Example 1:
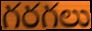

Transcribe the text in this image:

గరగలు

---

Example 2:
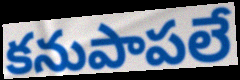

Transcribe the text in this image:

కనుపాపలే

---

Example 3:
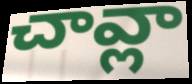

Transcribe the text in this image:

చావ్లా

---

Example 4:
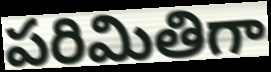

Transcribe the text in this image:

పరిమితిగా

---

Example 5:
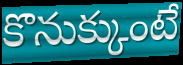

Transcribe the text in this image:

కొనుక్కుంటే